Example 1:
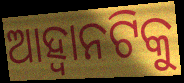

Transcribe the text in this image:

ଆହ୍ଵାନଟିକୁ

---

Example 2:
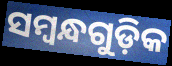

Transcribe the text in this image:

ସମ୍ବନ୍ଧଗୁଡ଼ିକ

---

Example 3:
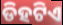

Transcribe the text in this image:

ଡିହଟିଏ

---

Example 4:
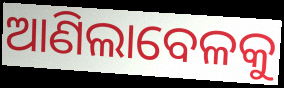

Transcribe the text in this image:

ଆଣିଲାବେଳକୁ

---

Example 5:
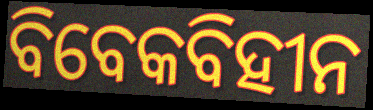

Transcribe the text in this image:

ବିବେକବିହୀନ